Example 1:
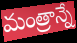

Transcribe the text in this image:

మంత్రాన్నే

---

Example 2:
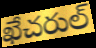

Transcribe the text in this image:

ఖేచరుల్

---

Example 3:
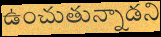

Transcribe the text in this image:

ఉంచుతున్నాడని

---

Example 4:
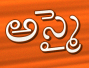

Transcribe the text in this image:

అస్మై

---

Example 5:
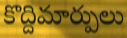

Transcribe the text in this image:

కొద్దిమార్పులు